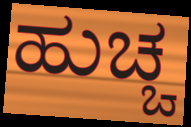
ಹುಚ್ಚ